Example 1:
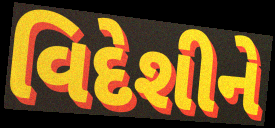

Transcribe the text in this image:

વિદેશીને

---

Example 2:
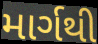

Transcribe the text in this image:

માર્ગથી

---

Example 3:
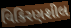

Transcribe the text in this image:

વિકિરણશીલ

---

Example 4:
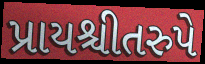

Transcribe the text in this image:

પ્રાયશ્ચીતરુપે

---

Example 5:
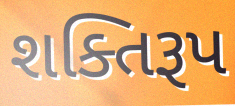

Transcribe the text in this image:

શક્તિરૂપ